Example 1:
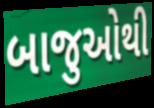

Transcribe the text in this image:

બાજુઓથી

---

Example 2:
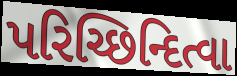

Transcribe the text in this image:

પરિચ્છિન્દિત્વા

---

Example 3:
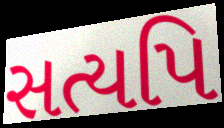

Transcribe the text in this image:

સત્યપિ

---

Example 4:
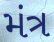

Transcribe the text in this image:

મંત્ર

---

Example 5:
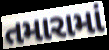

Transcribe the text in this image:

તમારામાં